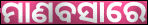
ମାଣବସାରେ